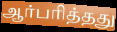
ஆர்பரித்தது